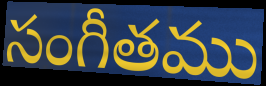
సంగీతము